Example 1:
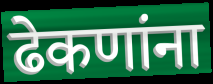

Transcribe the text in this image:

ढेकणांना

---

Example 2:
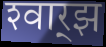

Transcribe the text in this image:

श्वार्झ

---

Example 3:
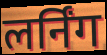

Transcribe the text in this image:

लर्निंग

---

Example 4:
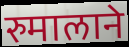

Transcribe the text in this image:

रुमालाने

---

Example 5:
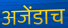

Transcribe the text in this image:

अजेंडाच